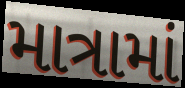
માત્રામાં